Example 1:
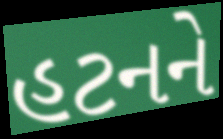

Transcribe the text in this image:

હટનને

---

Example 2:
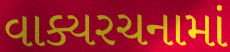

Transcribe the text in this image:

વાક્યરચનામાં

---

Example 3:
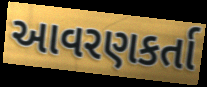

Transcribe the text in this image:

આવરણકર્તા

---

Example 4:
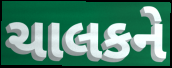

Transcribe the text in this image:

ચાલકને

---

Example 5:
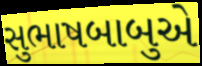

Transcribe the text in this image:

સુભાષબાબુએ